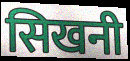
सिखनी